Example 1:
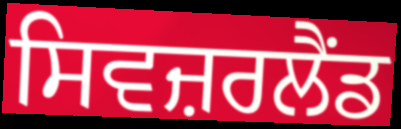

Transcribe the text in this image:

ਸਿਵਜ਼ਰਲੈਂਡ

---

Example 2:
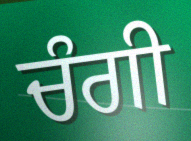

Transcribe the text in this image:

ਚੰਗੀ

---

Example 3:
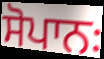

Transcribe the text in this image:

ਸੋਪਾਨਃ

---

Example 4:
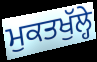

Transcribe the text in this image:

ਮੁਕਤਖੁੱਲ੍ਹੇ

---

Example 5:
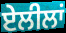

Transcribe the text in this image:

ਏਲੀਲਾਂ